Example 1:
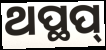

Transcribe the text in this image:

ଥପ୍ଥପ୍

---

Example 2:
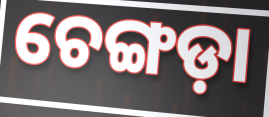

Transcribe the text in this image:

ଚେଙ୍ଗଡ଼ା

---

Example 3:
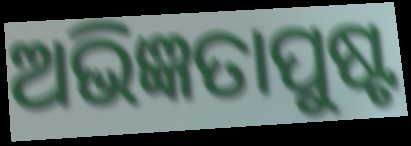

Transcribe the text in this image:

ଅଭିଜ୍ଞତାପୁଷ୍ଟ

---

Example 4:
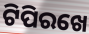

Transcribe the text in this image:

ଟିପିରଖେ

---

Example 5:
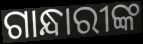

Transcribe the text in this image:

ଗାନ୍ଧାରୀଙ୍କ